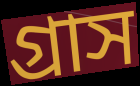
গ্ৰাস